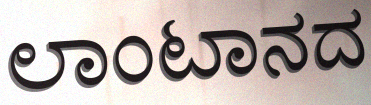
ಲಾಂಟಾನದ